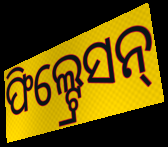
ଫିଲ୍ଟ୍ରେସନ୍